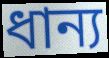
ধান্য